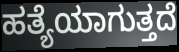
ಹತ್ಯೆಯಾಗುತ್ತದೆ